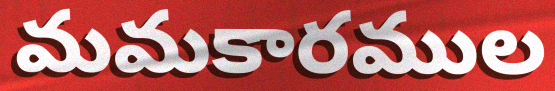
మమకారముల